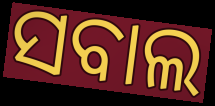
ସବାଲ